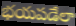
భయపడేలా